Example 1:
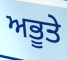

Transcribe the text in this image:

ਅਭੂਤੇ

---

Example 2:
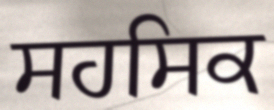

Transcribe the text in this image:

ਸਹਸਿਕ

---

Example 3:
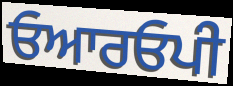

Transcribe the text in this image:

ਓਆਰਓਪੀ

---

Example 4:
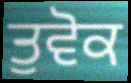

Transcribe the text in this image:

ਤੁਵੋਕ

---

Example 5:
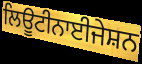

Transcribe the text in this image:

ਲਿਊਟੀਨਾਈਜੇਸ਼ਨ